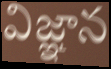
విజ్ఞాన